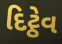
દિટ્ઠેવ